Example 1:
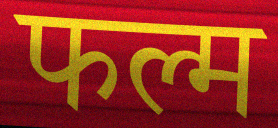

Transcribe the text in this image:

फल्म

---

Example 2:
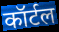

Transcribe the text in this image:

कॉर्टल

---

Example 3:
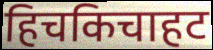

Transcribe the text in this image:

हिचकिचाहट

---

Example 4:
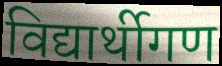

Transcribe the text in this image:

विद्यार्थीगण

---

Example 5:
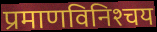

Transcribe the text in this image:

प्रमाणविनिश्चय